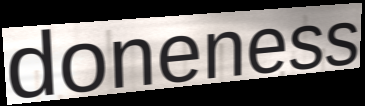
doneness